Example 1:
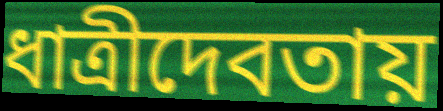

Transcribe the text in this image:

ধাত্রীদেবতায়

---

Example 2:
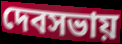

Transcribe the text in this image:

দেবসভায়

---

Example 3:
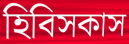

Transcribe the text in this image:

হিবিসকাস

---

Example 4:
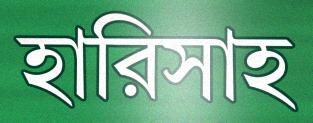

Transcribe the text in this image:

হারিসাহ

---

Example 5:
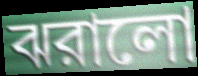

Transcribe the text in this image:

ঝরালো